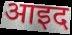
आइद